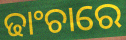
ଢାଂଚାରେ